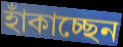
হাঁকাচ্ছেন